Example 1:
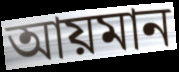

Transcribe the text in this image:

আয়মান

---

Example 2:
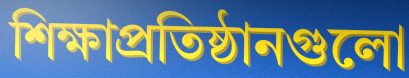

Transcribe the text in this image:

শিক্ষাপ্রতিষ্ঠানগুলো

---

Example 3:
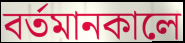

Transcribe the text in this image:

বর্তমানকালে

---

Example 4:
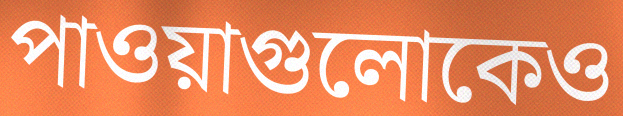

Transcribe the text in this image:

পাওয়াগুলোকেও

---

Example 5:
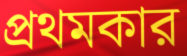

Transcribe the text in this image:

প্রথমকার